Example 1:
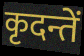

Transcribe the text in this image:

कृदन्तें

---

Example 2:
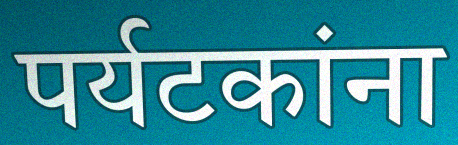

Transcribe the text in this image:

पर्यटकांना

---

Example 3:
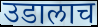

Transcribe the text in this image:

उडालाच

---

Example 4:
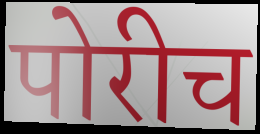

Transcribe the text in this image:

पोरीच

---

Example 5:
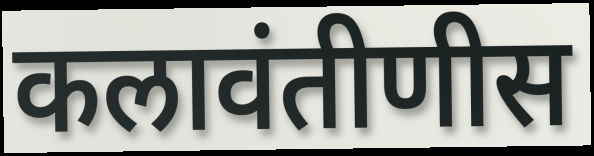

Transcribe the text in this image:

कलावंतीणीस